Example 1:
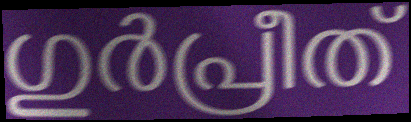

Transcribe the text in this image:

ഗുർപ്രീത്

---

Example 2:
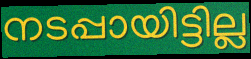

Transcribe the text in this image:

നടപ്പായിട്ടില്ല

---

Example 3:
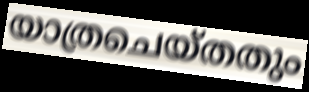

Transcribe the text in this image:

യാത്രചെയ്തതും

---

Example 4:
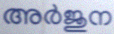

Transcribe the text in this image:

അർജുന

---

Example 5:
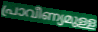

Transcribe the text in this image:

പ്രാവീണ്യമുള്ള